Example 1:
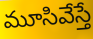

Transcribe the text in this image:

మూసివేస్తే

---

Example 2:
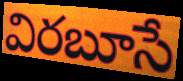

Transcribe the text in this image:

విరబూసే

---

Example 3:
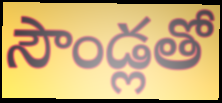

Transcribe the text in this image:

సౌండ్లతో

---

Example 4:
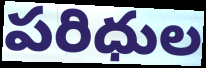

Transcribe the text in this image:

పరిధుల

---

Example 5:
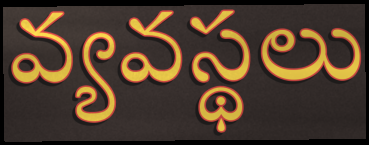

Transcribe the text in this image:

వ్యవస్థలు